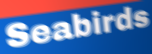
Seabirds